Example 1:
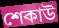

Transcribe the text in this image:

শেকাউ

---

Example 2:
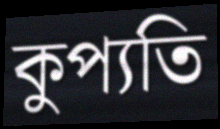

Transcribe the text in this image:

কুপ্যতি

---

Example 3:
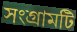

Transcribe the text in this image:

সংগ্রামটি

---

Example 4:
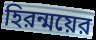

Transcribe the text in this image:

হিরন্ময়ের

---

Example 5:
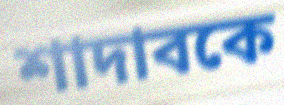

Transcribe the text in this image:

শাদাবকে